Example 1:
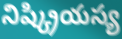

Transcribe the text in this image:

నిష్క్రియస్య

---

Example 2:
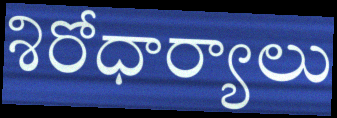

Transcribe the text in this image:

శిరోధార్యాలు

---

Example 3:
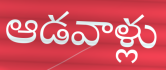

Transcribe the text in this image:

ఆడవాళ్లు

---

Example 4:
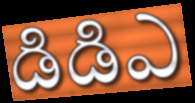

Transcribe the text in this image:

డిడిఎ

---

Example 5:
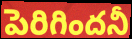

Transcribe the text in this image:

పెరిగిందనీ